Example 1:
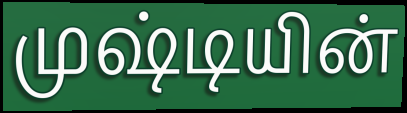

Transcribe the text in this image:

முஷ்டியின்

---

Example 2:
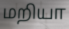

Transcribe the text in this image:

மறியா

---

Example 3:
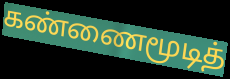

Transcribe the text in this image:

கண்ணைமூடித்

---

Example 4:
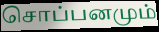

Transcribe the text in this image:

சொப்பனமும்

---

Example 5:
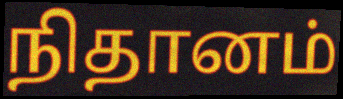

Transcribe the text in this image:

நிதானம்